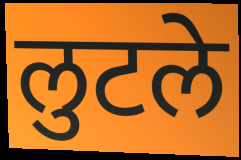
लुटले